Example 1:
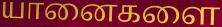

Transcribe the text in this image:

யானைகளை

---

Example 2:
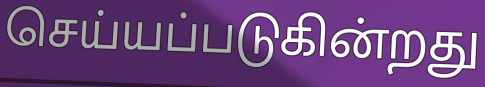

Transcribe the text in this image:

செய்யப்படுகின்றது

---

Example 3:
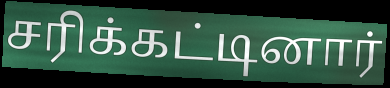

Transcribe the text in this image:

சரிக்கட்டினார்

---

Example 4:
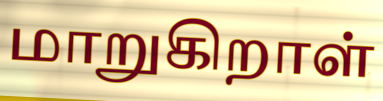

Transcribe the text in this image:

மாறுகிறாள்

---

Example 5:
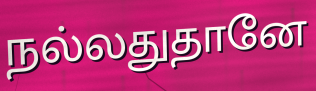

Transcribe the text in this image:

நல்லதுதானே